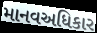
માનવઅધિકાર